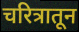
चरित्रातून